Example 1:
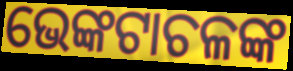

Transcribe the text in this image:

ଭେଙ୍କଟାଚଳଙ୍କ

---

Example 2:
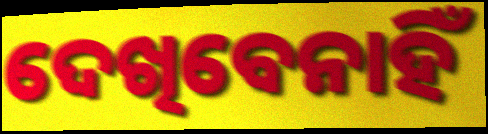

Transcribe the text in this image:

ଦେଖିବେନାହିଁ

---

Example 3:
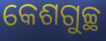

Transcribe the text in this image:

କେଶଗୁଚ୍ଛ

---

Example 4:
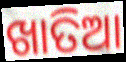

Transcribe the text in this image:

ଖାତିଆ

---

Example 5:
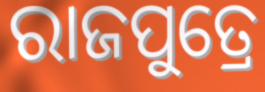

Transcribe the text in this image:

ରାଜପୁତ୍ରେ